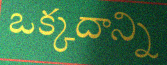
ఒక్కదాన్ని